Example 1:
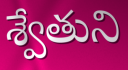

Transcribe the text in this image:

శ్వేతుని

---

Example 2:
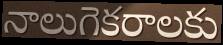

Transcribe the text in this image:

నాలుగెకరాలకు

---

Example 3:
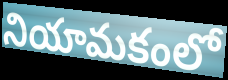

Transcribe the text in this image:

నియామకంలో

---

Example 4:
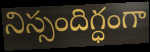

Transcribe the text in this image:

నిస్సందిగ్ధంగా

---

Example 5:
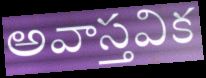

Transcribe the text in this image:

అవాస్తవిక